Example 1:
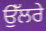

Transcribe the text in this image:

ਉੱਲਰੇ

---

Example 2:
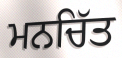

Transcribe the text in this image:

ਮਨਚਿੱਤ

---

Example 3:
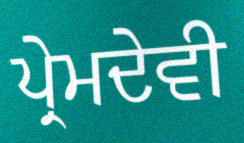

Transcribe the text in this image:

ਪ੍ਰੇਮਦੇਵੀ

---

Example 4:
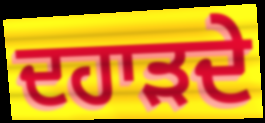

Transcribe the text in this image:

ਦਹਾੜਦੇ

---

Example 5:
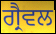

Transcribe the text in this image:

ਗ੍ਰੈਵਲ